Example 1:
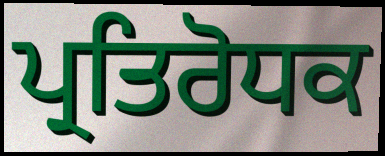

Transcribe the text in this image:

ਪ੍ਰਤਿਰੋਧਕ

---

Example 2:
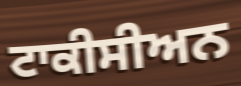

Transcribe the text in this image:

ਟਾਕੀਸੀਅਨ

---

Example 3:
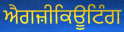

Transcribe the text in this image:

ਐਗਜ਼ੀਕਿਊਟਿੰਗ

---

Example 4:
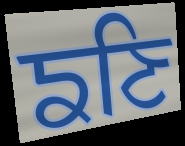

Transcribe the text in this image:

ਙਣਿ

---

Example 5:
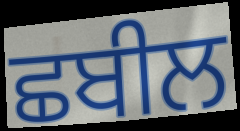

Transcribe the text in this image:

ਛਬੀਲ